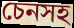
চেনসহ